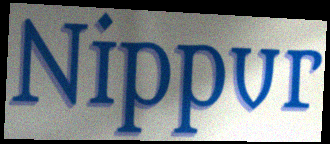
Nippur